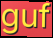
guf